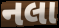
નલા